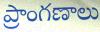
ప్రాంగణాలు